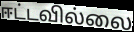
ஈட்டவில்லை